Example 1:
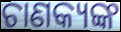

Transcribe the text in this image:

ଚାଣକ୍ୟଙ୍କ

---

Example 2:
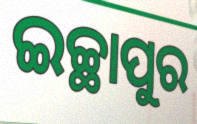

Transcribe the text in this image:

ଇଚ୍ଛାପୁର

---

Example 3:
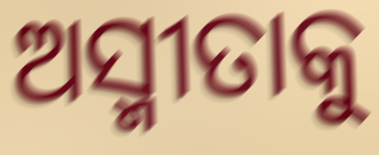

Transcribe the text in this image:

ଅସ୍ମୀତାକୁ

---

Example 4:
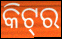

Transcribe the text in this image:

କିଟ୍‌ର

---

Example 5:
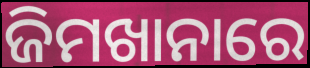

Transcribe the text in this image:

ଜିମଖାନାରେ